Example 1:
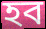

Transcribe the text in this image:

হব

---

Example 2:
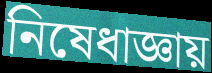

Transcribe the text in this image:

নিষেধাজ্ঞায়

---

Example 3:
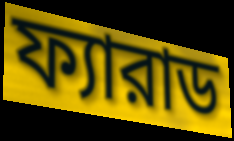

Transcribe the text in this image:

ফ্যারাড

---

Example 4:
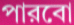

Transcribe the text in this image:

পারবো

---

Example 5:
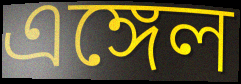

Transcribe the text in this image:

এঙ্গেল